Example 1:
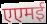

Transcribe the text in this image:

एएमई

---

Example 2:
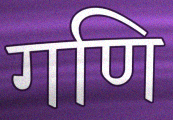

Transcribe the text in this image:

गणि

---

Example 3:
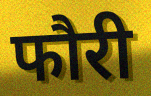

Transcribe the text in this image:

फौरी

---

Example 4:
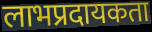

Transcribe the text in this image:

लाभप्रदायकता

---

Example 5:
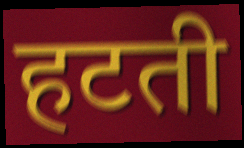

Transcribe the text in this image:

हटती